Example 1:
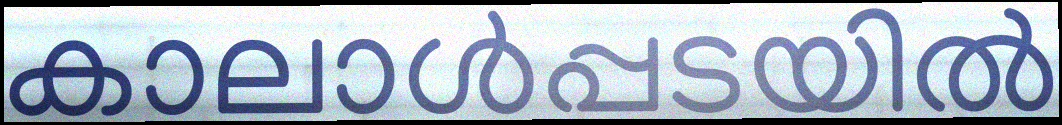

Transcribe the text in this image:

കാലാൾപ്പടയിൽ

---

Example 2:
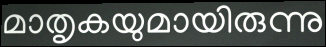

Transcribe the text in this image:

മാതൃകയുമായിരുന്നു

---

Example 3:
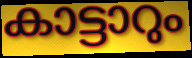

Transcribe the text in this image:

കാട്ടാറും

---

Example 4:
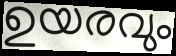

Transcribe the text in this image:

ഉയരവും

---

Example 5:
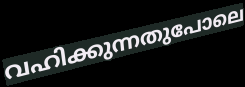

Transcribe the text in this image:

വഹിക്കുന്നതുപോലെ